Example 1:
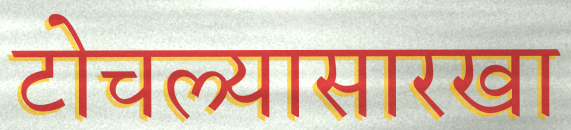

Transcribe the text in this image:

टोचल्यासारखा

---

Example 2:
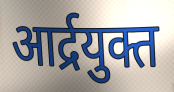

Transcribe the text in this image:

आर्द्रयुक्त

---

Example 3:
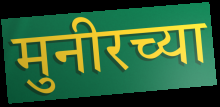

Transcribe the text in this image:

मुनीरच्या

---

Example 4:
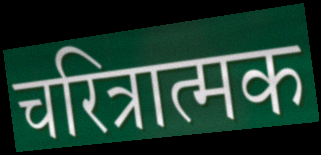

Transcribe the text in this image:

चरित्रात्मक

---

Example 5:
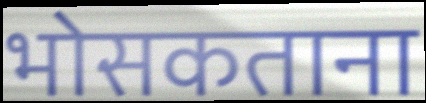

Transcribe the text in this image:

भोसकताना